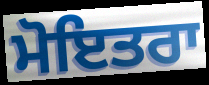
ਮੋਇਤਰਾ